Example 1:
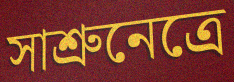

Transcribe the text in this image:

সাশ্রুনেত্রে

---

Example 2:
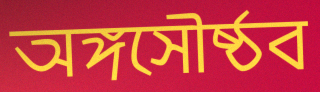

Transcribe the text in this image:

অঙ্গসৌষ্ঠব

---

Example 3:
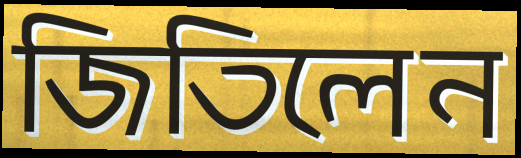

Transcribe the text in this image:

জিতিলেন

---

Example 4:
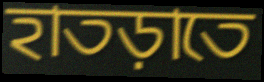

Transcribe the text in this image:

হাতড়াতে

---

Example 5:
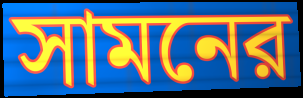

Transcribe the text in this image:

সামনের